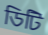
ডিটি